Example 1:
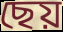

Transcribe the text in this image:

ছেয়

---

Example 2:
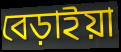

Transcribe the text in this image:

বেড়াইয়া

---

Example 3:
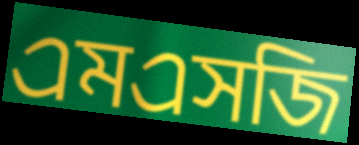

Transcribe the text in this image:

এমএসজি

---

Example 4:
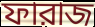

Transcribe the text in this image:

ফারাজ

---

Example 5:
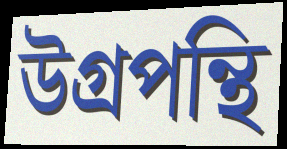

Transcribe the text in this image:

উগ্রপন্থি